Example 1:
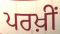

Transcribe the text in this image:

ਪਰਖ਼ੀਂ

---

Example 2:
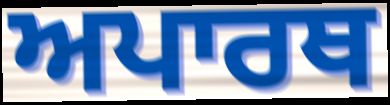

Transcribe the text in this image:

ਅਪਾਰਥ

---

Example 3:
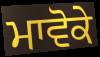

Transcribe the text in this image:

ਮਾਵੋਕੇ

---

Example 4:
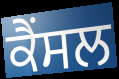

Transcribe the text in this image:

ਕੈਂਸਲ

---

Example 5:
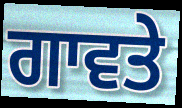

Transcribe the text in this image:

ਗਾਵਤੇ